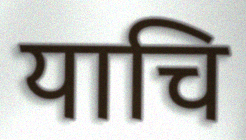
याचि